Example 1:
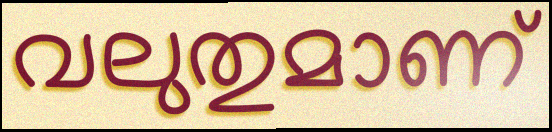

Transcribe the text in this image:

വലുതുമാണ്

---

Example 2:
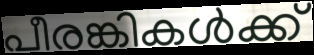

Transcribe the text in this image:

പീരങ്കികൾക്ക്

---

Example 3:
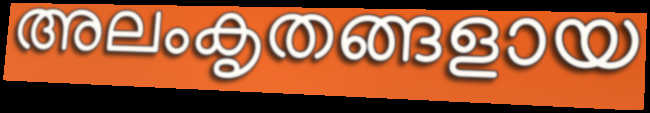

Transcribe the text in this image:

അലംകൃതങ്ങളായ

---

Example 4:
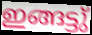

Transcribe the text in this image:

ഇങ്ങട്ടു്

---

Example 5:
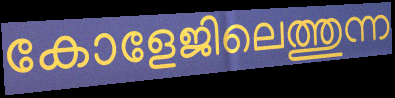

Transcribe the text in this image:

കോളേജിലെത്തുന്ന